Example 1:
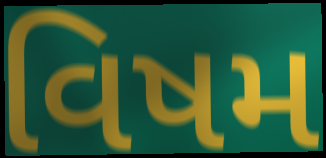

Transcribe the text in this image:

વિષમ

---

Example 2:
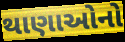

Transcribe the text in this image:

થાણાઓનો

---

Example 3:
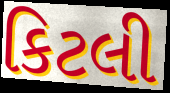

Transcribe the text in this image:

કિટલી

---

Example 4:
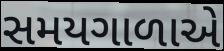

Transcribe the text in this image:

સમયગાળાએ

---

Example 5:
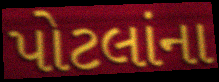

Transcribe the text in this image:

પોટલાંના